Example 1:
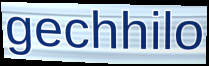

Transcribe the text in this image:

gechhilo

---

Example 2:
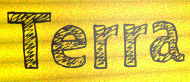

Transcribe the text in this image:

Terra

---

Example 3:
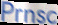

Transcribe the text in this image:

Prnsc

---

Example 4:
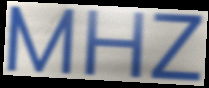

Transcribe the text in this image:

MHZ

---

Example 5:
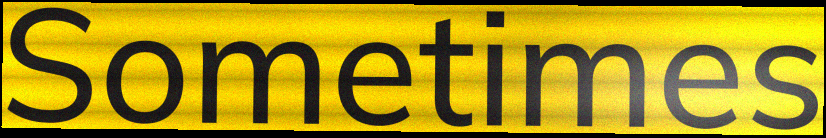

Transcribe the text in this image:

Sometimes